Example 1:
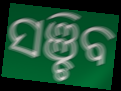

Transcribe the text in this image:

ସଞ୍ଚିବ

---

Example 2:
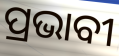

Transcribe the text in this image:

ପ୍ରଭାବୀ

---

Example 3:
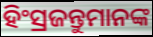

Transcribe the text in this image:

ହିଂସ୍ରଜନ୍ତୁମାନଙ୍କ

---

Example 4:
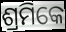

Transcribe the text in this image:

ଶ୍ରମିକେ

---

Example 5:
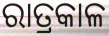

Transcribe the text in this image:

ରାତ୍ରକାଳ